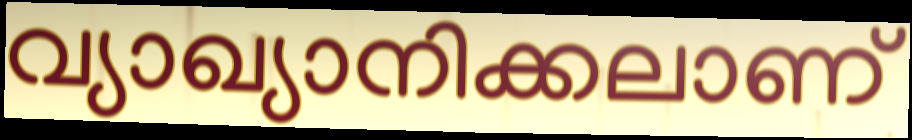
വ്യാഖ്യാനിക്കലാണ്